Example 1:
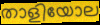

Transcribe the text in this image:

താളിയോല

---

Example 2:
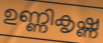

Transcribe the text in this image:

ഉണ്ണികൃഷ്ണ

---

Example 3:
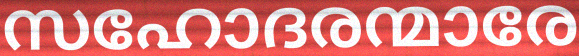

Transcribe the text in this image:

സഹോദരന്മാരേ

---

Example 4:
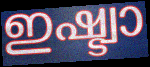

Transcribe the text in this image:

ഇഷ്ട്വാ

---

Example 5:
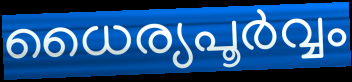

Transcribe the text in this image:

ധൈര്യപൂർവ്വം